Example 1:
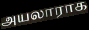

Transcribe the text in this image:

அயலாராக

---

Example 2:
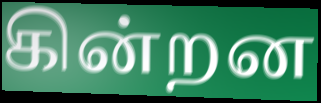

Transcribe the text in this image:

கின்றன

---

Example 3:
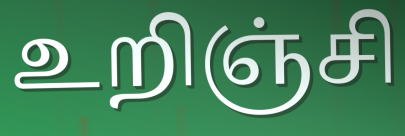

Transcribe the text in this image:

உறிஞ்சி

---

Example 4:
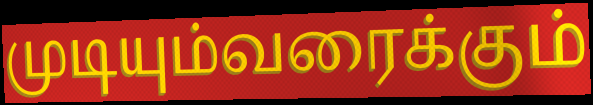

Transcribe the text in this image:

முடியும்வரைக்கும்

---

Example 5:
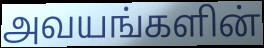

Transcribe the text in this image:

அவயங்களின்